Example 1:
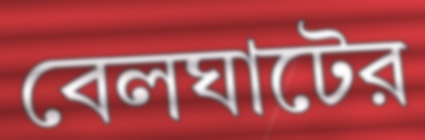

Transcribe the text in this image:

বেলঘাটের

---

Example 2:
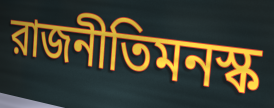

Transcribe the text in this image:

রাজনীতিমনস্ক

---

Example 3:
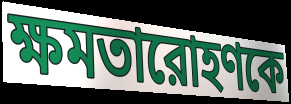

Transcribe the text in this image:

ক্ষমতারোহণকে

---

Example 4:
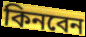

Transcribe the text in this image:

কিনবেন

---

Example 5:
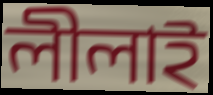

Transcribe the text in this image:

লীলাই